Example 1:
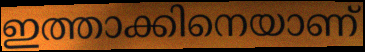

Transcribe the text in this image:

ഇത്താക്കിനെയാണ്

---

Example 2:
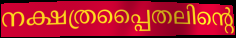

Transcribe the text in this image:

നക്ഷത്രപ്പൈതലിന്റെ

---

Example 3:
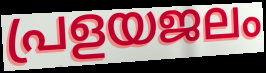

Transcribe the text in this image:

പ്രളയജലം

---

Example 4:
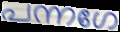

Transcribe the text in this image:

പന്നഗേ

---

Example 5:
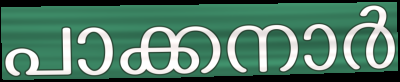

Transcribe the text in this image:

പാക്കനാർ